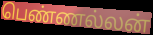
பெண்ணல்லன்